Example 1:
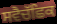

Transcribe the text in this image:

ਸਵੈਚੱਛਿਕ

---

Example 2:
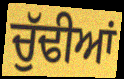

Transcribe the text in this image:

ਚੁੱਢੀਆਂ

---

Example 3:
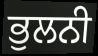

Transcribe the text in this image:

ਭੁਲਨੀ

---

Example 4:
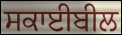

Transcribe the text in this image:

ਸਕਾਈਬੀਲ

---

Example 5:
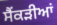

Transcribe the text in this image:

ਸੈਂਕੜੀਆਂ